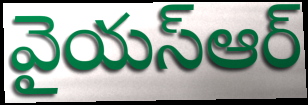
వైయస్ఆర్